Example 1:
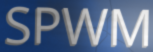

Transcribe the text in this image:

SPWM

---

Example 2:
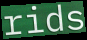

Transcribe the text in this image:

rids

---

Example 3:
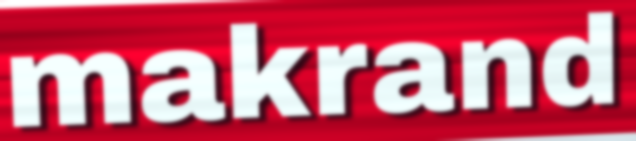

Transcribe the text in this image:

makrand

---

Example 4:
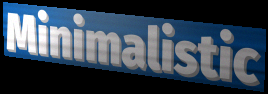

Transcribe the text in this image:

Minimalistic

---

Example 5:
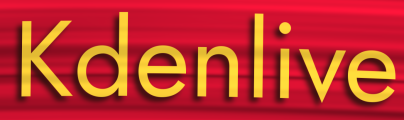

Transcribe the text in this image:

Kdenlive